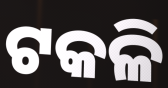
ଟକଳି